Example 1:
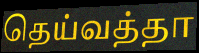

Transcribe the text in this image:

தெய்வத்தா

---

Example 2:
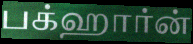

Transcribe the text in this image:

பக்ஹார்ன்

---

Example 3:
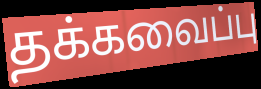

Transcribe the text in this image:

தக்கவைப்பு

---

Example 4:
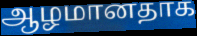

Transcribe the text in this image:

ஆழமானதாக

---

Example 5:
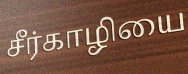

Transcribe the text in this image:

சீர்காழியை